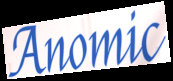
Anomic